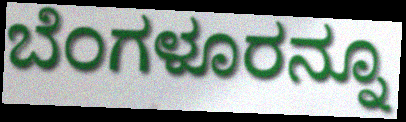
ಬೆಂಗಳೂರನ್ನೂ